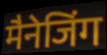
मैनेजिंग